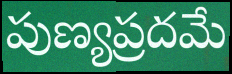
పుణ్యప్రదమే